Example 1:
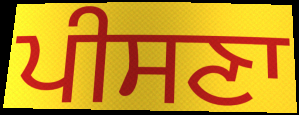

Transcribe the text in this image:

ਪੀਸਣਾ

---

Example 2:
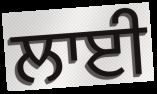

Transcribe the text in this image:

ਲਾਈ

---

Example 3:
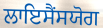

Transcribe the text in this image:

ਲਾਇਸੈਂਸਯੋਗ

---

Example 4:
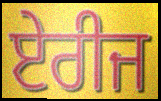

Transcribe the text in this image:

ਏਰੀਜ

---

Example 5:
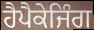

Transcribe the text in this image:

ਹੈਪੈਕੇਜਿੰਗ